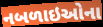
નબળાઇઓના